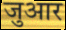
जुआर